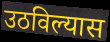
उठविल्यास